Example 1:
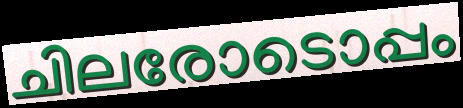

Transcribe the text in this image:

ചിലരോടൊപ്പം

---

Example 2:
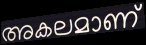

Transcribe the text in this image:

അകലമാണ്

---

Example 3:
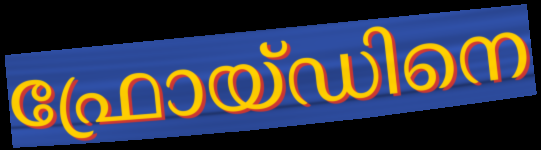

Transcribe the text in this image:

ഫ്രോയ്ഡിനെ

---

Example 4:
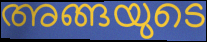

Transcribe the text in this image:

അങ്ങയുടെ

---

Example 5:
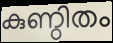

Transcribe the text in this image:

കുണ്ഠിതം